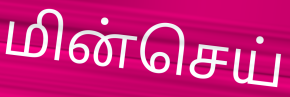
மின்செய்